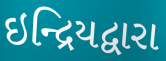
ઇન્દ્રિયદ્વારા